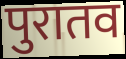
पुरातव